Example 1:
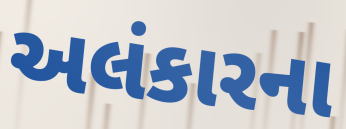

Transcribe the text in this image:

અલંકારના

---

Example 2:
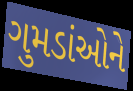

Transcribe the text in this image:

ગુમડાંઓને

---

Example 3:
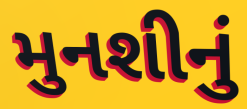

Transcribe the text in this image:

મુનશીનું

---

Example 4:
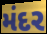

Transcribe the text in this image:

મંદર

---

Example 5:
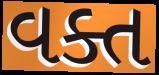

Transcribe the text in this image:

વક્ત